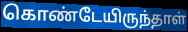
கொண்டேயிருந்தாள்